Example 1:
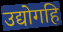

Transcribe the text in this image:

उद्योगहि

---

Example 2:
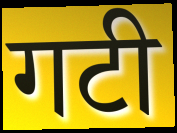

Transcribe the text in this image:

गटी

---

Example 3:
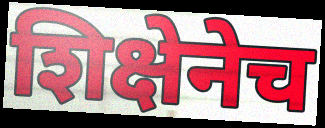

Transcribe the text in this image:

शिक्षेनेच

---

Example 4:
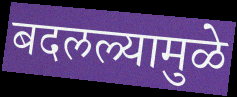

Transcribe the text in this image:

बदलल्यामुळे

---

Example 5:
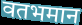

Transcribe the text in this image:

वतभमान